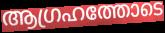
ആഗ്രഹത്തോടെ